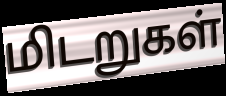
மிடறுகள்